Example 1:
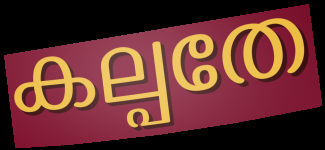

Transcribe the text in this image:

കല്പതേ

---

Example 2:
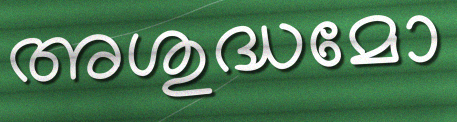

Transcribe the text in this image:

അശുദ്ധമോ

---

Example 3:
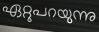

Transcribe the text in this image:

ഏറ്റുപറയുന്നു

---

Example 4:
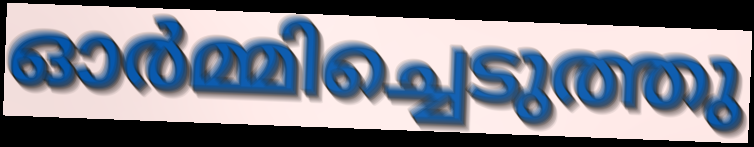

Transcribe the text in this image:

ഓർമ്മിച്ചെടുത്തു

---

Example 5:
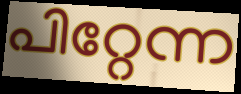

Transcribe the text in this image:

പിറ്റേന്ന